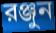
রঞ্জুন